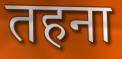
तहना